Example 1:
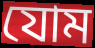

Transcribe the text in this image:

যোম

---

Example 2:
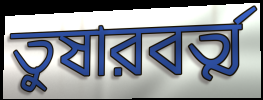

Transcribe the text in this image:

তুষারবর্ত্ম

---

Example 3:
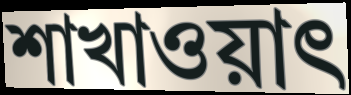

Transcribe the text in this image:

শাখাওয়াৎ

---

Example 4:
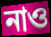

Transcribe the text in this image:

নাও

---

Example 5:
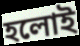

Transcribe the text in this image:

হলোই